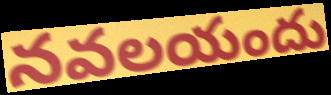
నవలయందు